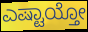
ಎಷ್ಟಾಯ್ತೋ